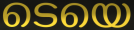
ടെയെ